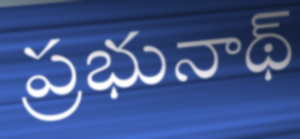
ప్రభునాథ్